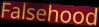
Falsehood